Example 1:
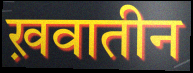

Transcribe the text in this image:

ख़वातीन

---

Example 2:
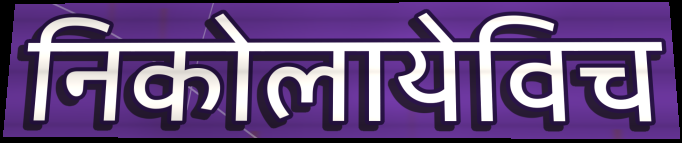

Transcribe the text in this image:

निकोलायेविच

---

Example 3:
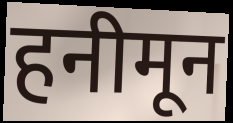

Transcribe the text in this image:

हनीमून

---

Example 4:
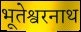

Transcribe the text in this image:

भूतेश्वरनाथ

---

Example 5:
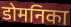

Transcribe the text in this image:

डोमनिका